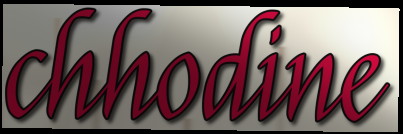
chhodine